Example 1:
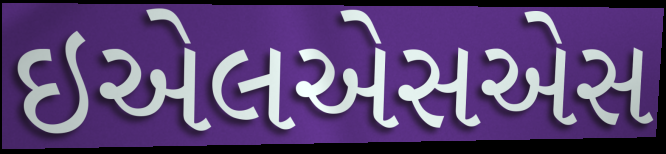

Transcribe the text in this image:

ઇએલએસએસ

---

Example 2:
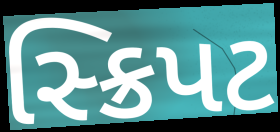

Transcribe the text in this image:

સ્ક્રિપટ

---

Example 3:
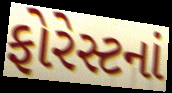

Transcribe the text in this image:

ફોરેસ્ટનાં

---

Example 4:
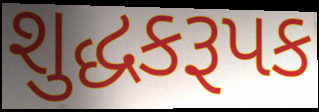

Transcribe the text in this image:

શુદ્ધકરૂપક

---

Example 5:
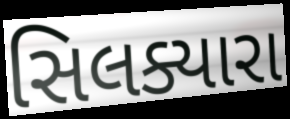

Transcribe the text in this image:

સિલક્યારા